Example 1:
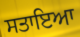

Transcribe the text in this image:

ਸਤਾਇਆ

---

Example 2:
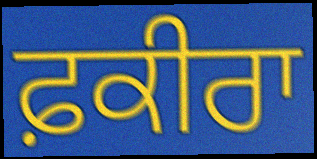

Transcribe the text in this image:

ਫ਼ਕੀਰਾ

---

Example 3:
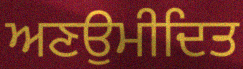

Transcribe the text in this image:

ਅਣਉਮੀਦਿਤ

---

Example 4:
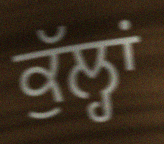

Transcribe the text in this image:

ਕੁੱਲ੍ਹਾਂ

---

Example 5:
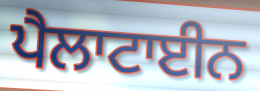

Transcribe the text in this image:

ਪੈਲਾਟਾਈਨ